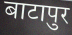
बाटापुर